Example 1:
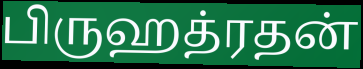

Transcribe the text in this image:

பிருஹத்ரதன்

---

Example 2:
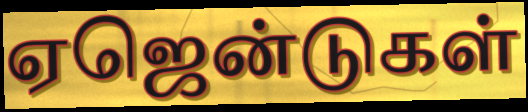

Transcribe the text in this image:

ஏஜென்டுகள்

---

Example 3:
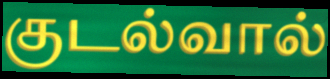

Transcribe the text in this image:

குடல்வால்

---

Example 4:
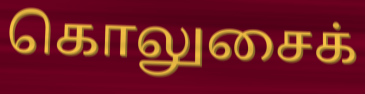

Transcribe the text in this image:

கொலுசைக்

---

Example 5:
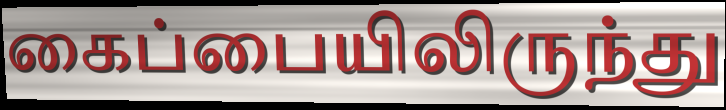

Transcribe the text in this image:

கைப்பையிலிருந்து